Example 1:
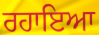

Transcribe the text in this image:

ਰਹਾਇਆ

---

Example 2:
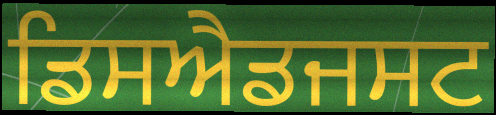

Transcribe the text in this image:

ਡਿਸਐਡਜਸਟ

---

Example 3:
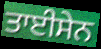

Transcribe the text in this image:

ਤਾਈਸੇਨ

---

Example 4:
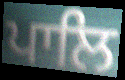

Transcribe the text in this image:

ਪਾਲਿ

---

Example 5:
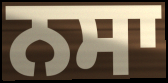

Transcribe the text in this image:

ਨਸਾ